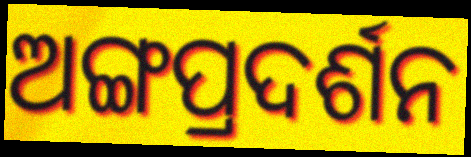
ଅଙ୍ଗପ୍ରଦର୍ଶନ